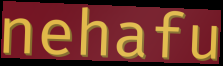
nehafu